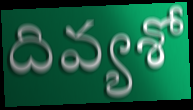
దివ్యశో